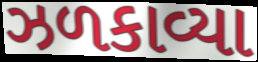
ઝળકાવ્યા